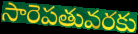
సారెపతువరకు